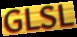
GLSL